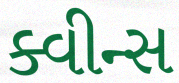
ક્વીન્સ